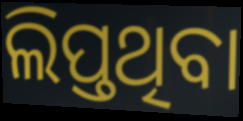
ଲିପ୍ତଥିବା